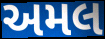
અમલ